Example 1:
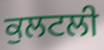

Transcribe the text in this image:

ਕੁਲਟਲੀ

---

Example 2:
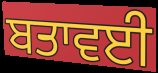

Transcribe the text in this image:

ਬਤਾਵਈ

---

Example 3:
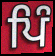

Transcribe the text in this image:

ਪਿੰ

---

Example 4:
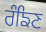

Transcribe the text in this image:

ਰੰਙਿਣ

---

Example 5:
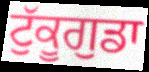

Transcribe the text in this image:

ਟੁੱਕੂਗੁਡਾ